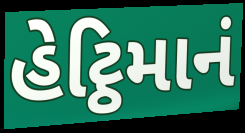
હેટ્ઠિમાનં